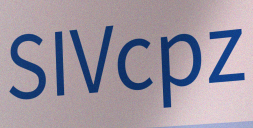
SIVcpz